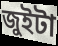
জুইটা